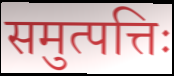
समुत्पत्तिः